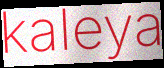
kaleya